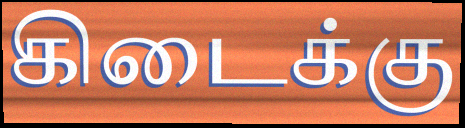
கிடைக்கு